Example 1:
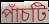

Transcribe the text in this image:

পাঁচটি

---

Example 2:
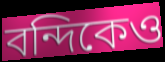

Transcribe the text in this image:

বন্দিকেও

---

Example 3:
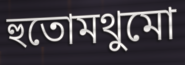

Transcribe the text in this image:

হুতোমথুমো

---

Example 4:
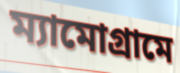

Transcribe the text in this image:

ম্যামোগ্রামে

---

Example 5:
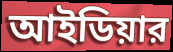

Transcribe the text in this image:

আইডিয়ার